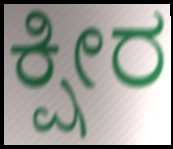
ಕ್ಷೀರ